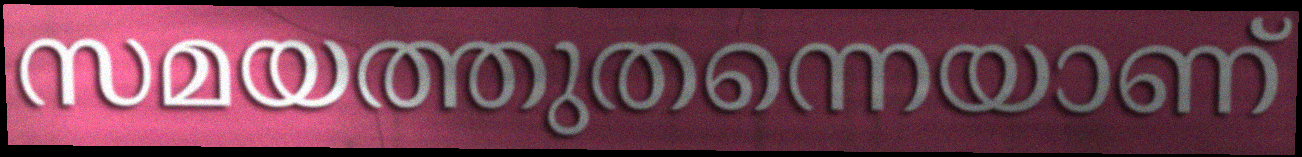
സമയത്തുതന്നെയാണ്